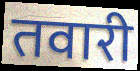
तवारी